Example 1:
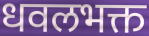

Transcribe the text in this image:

धवलभक्त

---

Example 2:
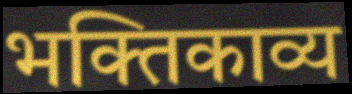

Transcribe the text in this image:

भक्तिकाव्य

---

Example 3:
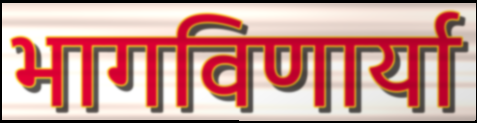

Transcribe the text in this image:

भागविणार्या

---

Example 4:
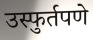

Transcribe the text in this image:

उस्फुर्तपणे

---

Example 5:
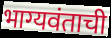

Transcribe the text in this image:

भाग्यवंताची